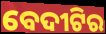
ବେଦୀଟିର